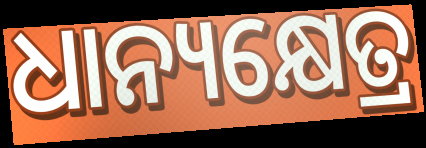
ଧାନ୍ୟକ୍ଷେତ୍ର